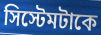
সিস্টেমটাকে